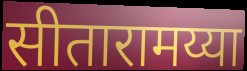
सीतारामय्या